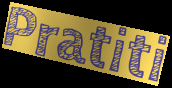
Pratiti